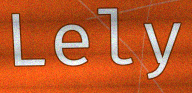
Lely